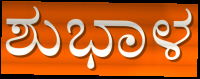
ಶುಭಾಳ